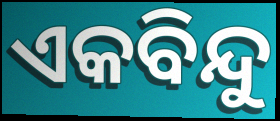
ଏକବିନ୍ଦୁ